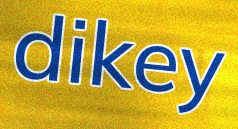
dikey